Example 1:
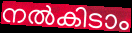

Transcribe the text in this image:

നൽകിടാം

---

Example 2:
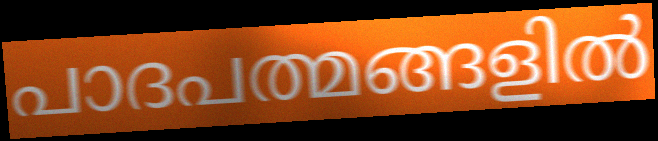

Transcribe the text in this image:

പാദപത്മങ്ങളിൽ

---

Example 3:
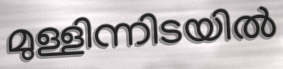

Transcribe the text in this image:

മുള്ളിന്നിടയിൽ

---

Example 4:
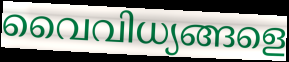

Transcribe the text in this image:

വൈവിധ്യങ്ങളെ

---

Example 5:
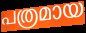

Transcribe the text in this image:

പത്രമായ